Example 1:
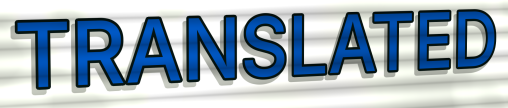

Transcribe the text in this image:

TRANSLATED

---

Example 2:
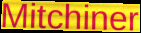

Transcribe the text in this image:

Mitchiner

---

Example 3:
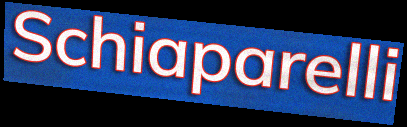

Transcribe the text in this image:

Schiaparelli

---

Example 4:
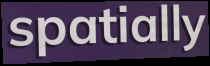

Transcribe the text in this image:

spatially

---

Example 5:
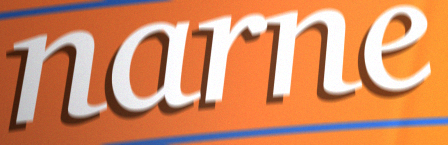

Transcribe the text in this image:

narne